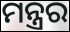
ମନ୍ତ୍ରର